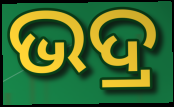
ଭଦ୍ର